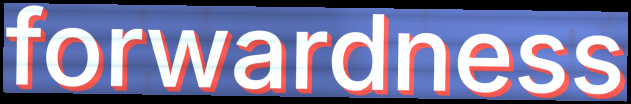
forwardness